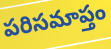
పరిసమాప్తం